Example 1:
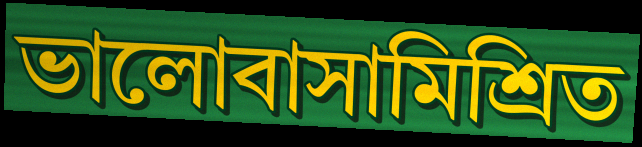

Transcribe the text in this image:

ভালোবাসামিশ্রিত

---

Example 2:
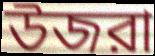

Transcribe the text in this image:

উজরা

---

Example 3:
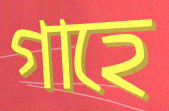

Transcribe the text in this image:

গাহে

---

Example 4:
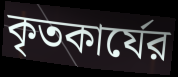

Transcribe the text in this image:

কৃতকার্যের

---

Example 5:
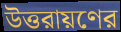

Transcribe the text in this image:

উত্তরায়ণের